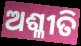
ଅଶ୍ଳୀତି